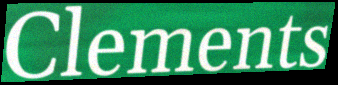
Clements